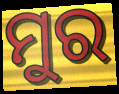
ମୁର